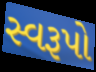
સ્વરૂપો